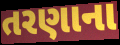
તરણાના